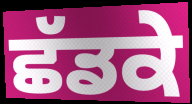
ਛੱਡਕੇ